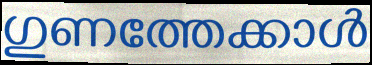
ഗുണത്തേക്കാൾ